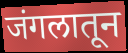
जंगलातून